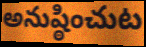
అనుష్ఠించుట